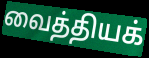
வைத்தியக்